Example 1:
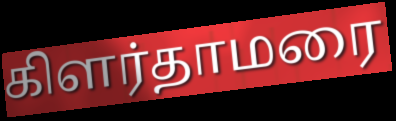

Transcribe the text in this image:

கிளர்தாமரை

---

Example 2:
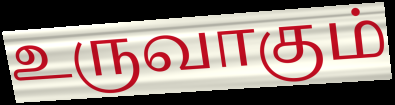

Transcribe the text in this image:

உருவாகும்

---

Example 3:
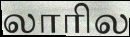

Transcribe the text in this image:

லாரில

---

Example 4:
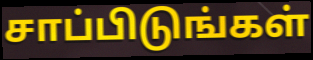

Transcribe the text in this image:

சாப்பிடுங்கள்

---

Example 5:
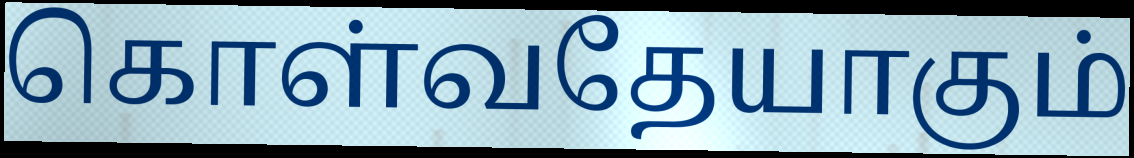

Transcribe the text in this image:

கொள்வதேயாகும்